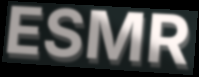
ESMR